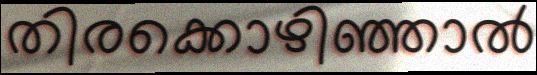
തിരക്കൊഴിഞ്ഞാൽ